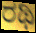
ರಥಿ